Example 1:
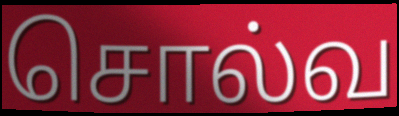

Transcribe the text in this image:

சொல்வ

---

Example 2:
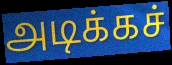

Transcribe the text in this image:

அடிக்கச்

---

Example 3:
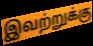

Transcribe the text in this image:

இவற்றுக்கு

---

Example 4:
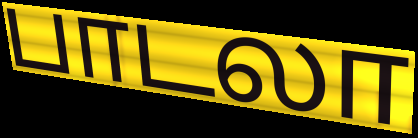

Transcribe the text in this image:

பாடலா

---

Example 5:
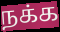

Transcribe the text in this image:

நக்க